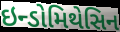
ઇન્ડોમિથેસિન